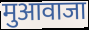
मुआवाजा